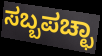
ಸಬ್ಬಪಚ್ಛಾ